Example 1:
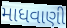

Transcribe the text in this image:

માધવાણી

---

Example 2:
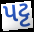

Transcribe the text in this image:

પટ્ટ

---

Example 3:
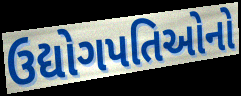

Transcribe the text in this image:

ઉદ્યોગપતિઓનો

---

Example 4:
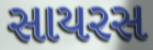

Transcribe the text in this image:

સાયરસ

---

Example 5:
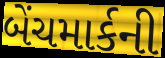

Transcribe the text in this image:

બેંચમાર્કની